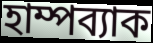
হাম্পব্যাক